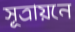
সূত্রায়নে